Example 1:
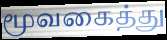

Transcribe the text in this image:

மூவகைத்து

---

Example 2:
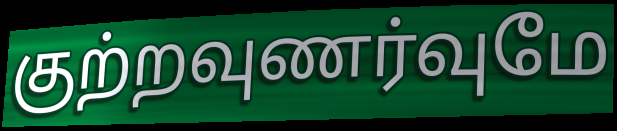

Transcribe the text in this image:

குற்றவுணர்வுமே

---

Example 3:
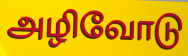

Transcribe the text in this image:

அழிவோடு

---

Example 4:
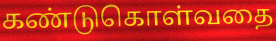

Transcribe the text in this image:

கண்டுகொள்வதை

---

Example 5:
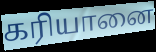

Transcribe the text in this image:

கரியானை